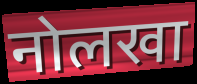
नोलखा